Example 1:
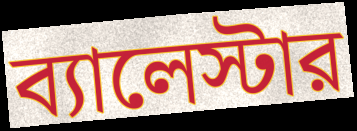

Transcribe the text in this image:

ব্যালেস্টার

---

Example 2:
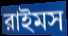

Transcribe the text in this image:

রাইমস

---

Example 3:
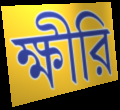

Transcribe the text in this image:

ক্ষীরি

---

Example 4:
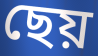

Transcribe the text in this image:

ছেয়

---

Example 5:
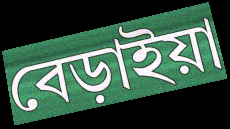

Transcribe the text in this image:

বেড়াইয়া